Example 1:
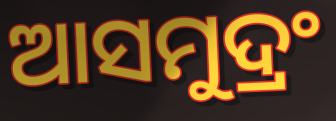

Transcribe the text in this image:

ଆସମୁଦ୍ରଂ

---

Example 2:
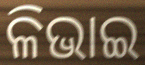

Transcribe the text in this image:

ଳିଭାଇ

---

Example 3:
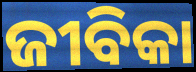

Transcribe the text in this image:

ଜୀବିକା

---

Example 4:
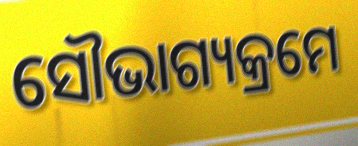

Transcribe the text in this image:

ସୌଭାଗ୍ୟକ୍ରମେ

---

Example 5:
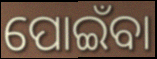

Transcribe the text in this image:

ପୋଇଁବା